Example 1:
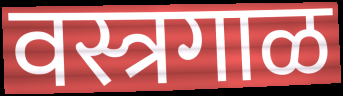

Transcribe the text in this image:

वस्त्रगाळ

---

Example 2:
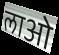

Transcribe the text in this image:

लाओ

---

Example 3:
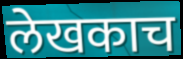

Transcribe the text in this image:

लेखकाच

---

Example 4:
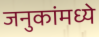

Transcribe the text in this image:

जनुकांमध्ये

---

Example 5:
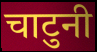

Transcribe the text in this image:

चाटुनी